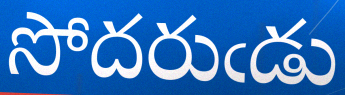
సోదరుఁడు